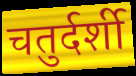
चतुर्दर्शी